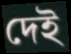
দেই